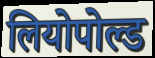
लियोपोल्ड